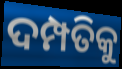
ଦମ୍ପତିକୁ